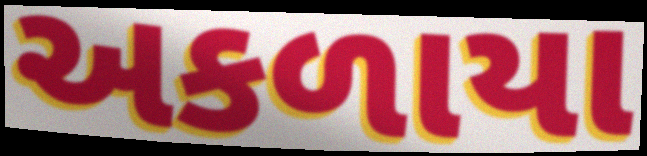
અકળાયા